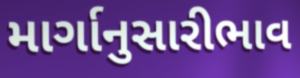
માર્ગાનુસારીભાવ